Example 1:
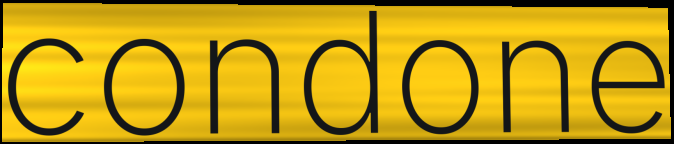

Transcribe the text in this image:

condone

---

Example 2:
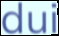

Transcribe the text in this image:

dui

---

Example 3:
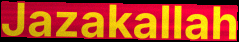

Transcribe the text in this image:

Jazakallah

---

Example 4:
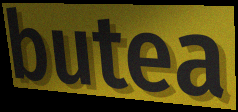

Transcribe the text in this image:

butea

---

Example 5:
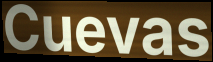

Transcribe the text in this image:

Cuevas